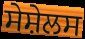
ਸੇਸ਼ੇਲਸ